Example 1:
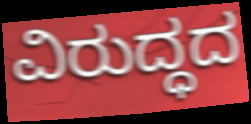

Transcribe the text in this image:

ವಿರುದ್ಧದ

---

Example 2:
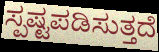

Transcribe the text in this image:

ಸ್ಪಷ್ಟಪಡಿಸುತ್ತದೆ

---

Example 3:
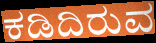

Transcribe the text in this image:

ಕಡಿದಿರುವ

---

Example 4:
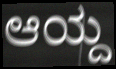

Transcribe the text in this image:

ಆಯ್ದ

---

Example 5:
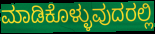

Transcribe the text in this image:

ಮಾಡಿಕೊಳ್ಳುವುದರಲ್ಲಿ